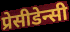
प्रेसीडेन्सी